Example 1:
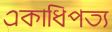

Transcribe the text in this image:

একাধিপত্য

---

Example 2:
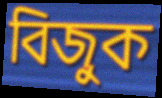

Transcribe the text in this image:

বিজুক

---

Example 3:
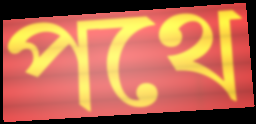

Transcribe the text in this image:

পথে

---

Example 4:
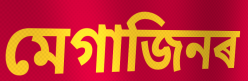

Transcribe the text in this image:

মেগাজিনৰ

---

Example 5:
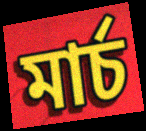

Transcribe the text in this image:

মাৰ্চ